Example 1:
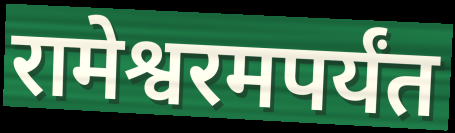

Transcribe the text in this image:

रामेश्वरमपर्यंत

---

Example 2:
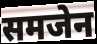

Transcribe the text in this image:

समजेन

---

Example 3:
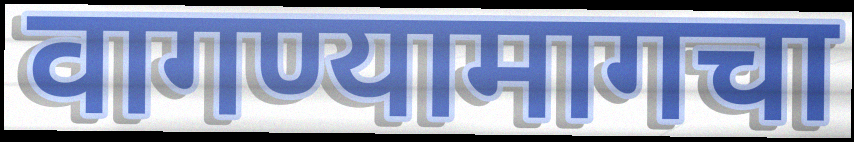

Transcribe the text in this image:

वागण्यामागचा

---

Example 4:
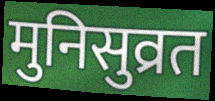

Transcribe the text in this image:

मुनिसुव्रत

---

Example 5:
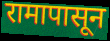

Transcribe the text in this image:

रामापासून